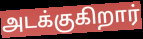
அடக்குகிறார்